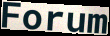
Forum